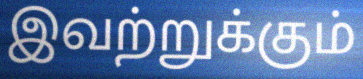
இவற்றுக்கும்